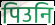
पिउनि